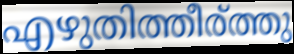
എഴുതിത്തീര്ത്തു